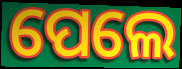
ପେଲେ